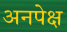
अनपेक्ष